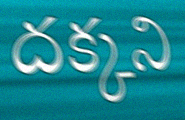
దక్కని